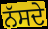
ਨੱਸਦੇ